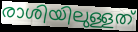
രാശിയിലുള്ളത്